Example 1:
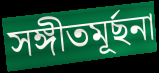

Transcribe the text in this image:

সঙ্গীতমূর্ছনা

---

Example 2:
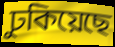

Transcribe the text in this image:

ঢুকিয়েছে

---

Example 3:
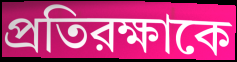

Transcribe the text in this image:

প্রতিরক্ষাকে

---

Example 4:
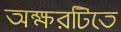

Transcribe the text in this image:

অক্ষরটিতে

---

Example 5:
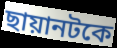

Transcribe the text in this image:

ছায়ানটকে